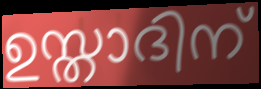
ഉസ്താദിന്